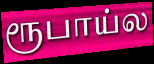
ரூபாய்ல